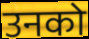
उनको